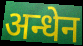
अन्धेन